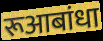
रूआबांधा